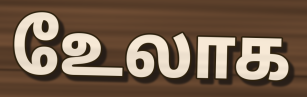
உேலாக